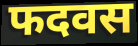
फदवस